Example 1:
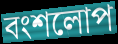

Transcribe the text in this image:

বংশলোপ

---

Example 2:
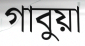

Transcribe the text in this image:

গাবুয়া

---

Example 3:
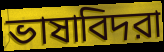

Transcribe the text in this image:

ভাষাবিদরা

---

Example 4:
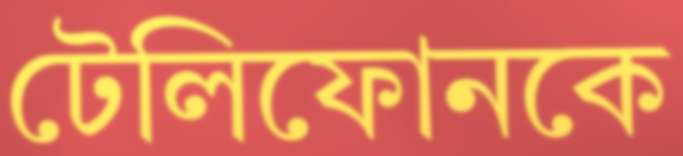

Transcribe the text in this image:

টেলিফোনকে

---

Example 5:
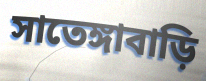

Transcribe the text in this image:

সাতেঙ্গাবাড়ি